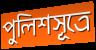
পুলিশসূত্রে